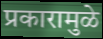
प्रकारामुळे